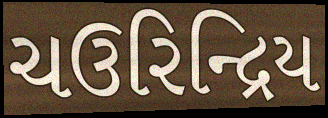
ચઉરિન્દ્રિય